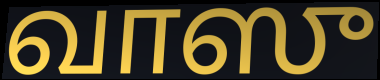
வாஸு